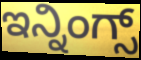
ಇನ್ನಿಂಗ್ಸ್